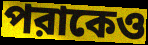
পরাকেও